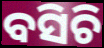
ବସିଚି